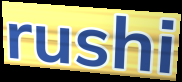
rushi